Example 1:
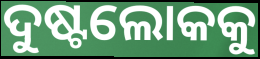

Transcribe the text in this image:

ଦୁଷ୍ଟଲୋକକୁ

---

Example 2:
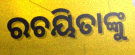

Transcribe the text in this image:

ରଚୟିତାଙ୍କୁ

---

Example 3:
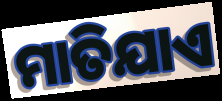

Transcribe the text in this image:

ମାତିଯାଏ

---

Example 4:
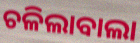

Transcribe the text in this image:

ଚଳିଲାବାଲା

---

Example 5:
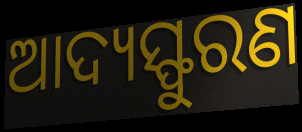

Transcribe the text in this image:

ଆଦ୍ୟସ୍ଫୁରଣ